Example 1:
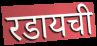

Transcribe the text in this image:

रडायची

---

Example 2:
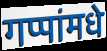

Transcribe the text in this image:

गप्पांमधे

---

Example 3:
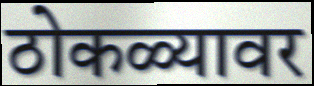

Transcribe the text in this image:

ठोकळ्यावर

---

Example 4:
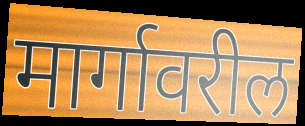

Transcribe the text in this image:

मार्गावरील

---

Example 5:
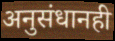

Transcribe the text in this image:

अनुसंधानही